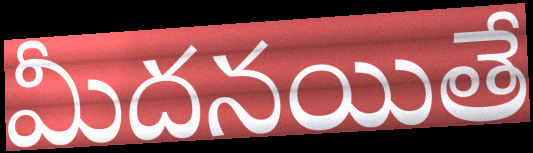
మీదనయితే